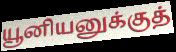
யூனியனுக்குத்